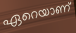
ഏറെയാണ്